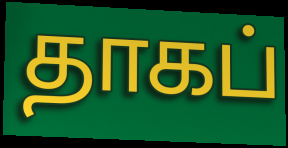
தாகப்